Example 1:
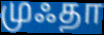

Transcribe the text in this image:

முஃதா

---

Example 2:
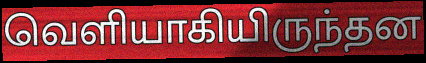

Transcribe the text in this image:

வெளியாகியிருந்தன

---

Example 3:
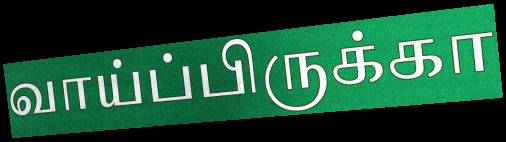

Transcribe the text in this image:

வாய்ப்பிருக்கா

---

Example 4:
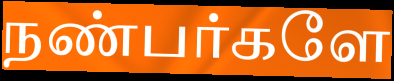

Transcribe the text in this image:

நண்பர்களே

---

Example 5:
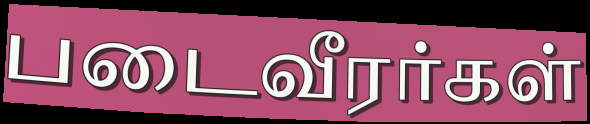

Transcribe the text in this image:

படைவீரர்கள்